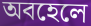
অবহেলে